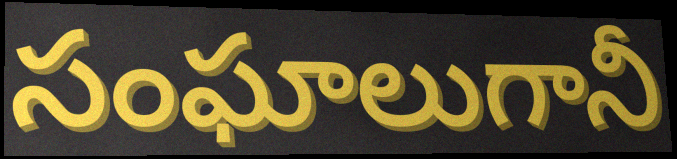
సంఘాలుగానీ